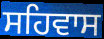
ਸਹਿਵਾਸ